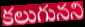
కలుగునని